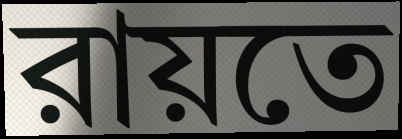
রায়তে